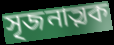
সৃজনাত্মক